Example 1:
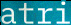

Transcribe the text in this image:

atri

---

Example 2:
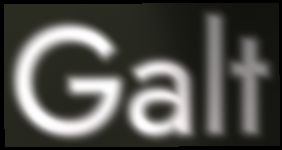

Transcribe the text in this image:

Galt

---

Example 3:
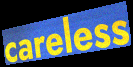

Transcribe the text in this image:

careless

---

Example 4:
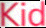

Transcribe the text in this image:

Kid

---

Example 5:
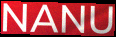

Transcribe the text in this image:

NANU